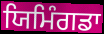
ਯਿਮਿੰਗਡਾ